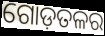
ଗୋଡ଼ତଳର